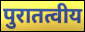
पुरातत्वीय